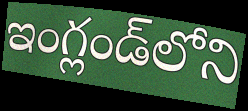
ఇంగ్లండ్‌లోని